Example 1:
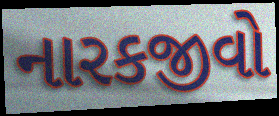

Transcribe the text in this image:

નારકજીવો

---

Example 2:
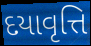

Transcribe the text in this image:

દયાવૃત્તિ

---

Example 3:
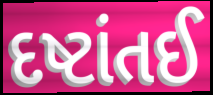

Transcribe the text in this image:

દષ્ટાંતઈ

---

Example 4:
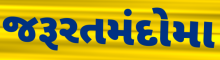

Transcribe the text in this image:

જરૂરતમંદોમા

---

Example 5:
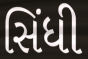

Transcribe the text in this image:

સિંધી